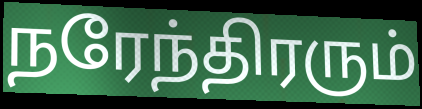
நரேந்திரரும்